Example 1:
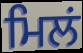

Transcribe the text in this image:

ਮਿਲਂ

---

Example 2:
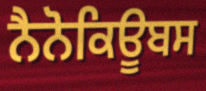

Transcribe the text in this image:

ਨੈਨੋਕਿਊਬਸ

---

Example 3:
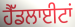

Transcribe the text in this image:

ਹੈੱਡਲਾਈਟਾਂ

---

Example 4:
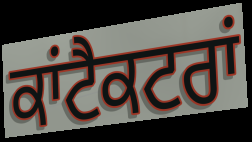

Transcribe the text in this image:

ਕਾਂਟੈਕਟਰਾਂ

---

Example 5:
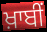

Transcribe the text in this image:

ਖ਼ਾਬੀਂ